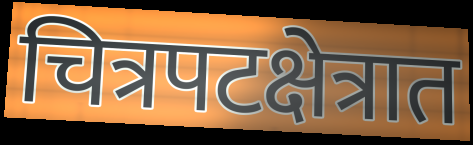
चित्रपटक्षेत्रात